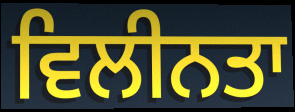
ਵਿਲੀਨਤਾ